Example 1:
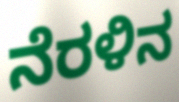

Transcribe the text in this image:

ನೆರಳಿನ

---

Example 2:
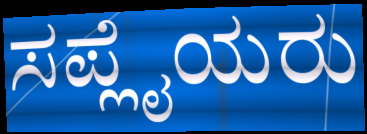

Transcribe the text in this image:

ಸಪ್ಲೈಯರು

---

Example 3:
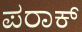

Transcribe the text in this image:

ಪರಾಕ್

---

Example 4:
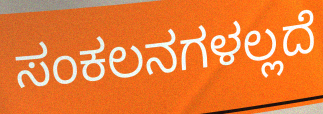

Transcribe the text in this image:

ಸಂಕಲನಗಳಲ್ಲದೆ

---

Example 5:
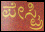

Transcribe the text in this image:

ಪೇಸ್ಟ್ರಿ